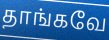
தாங்கவே